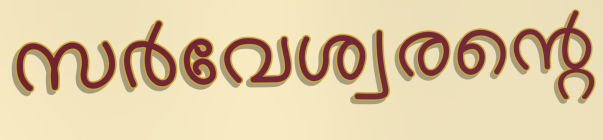
സർവേശ്വരന്റെ